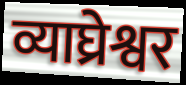
व्याघ्रेश्वर